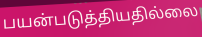
பயன்படுத்தியதில்லை